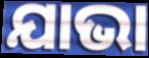
ଯାଭା